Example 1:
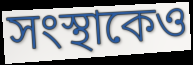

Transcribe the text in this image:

সংস্থাকেও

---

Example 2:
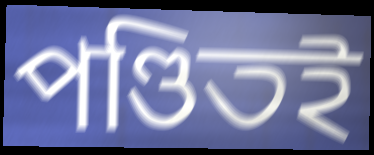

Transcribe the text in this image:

পণ্ডিতই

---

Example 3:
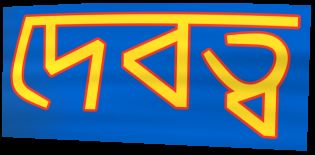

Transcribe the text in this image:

দেবত্ব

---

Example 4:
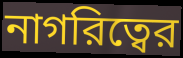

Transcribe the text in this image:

নাগরিত্বের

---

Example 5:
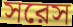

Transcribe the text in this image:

সরেস